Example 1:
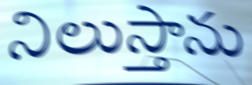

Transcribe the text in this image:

నిలుస్తాను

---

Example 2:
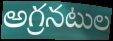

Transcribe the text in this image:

అగ్రనటుల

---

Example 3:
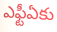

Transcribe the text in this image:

ఎఫ్టీఏకు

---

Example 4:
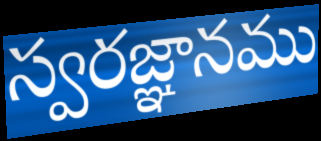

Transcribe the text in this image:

స్వరజ్ఞానము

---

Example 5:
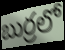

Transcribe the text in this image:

బుర్రలో